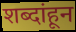
शब्दांहून